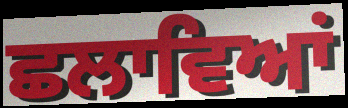
ਛਲਾਵਿਆਂ